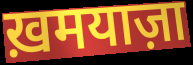
ख़मयाज़ा